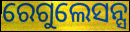
ରେଗୁଲେସନ୍ସ